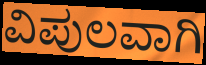
ವಿಪುಲವಾಗಿ